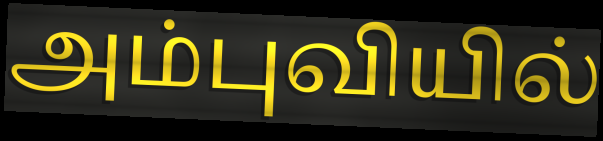
அம்புவியில்